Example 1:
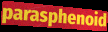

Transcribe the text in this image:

parasphenoid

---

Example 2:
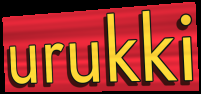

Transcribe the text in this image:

urukki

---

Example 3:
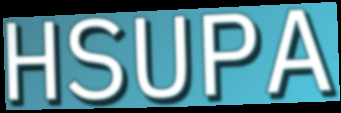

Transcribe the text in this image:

HSUPA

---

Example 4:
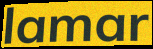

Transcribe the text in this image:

lamar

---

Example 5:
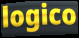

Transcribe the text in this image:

logico